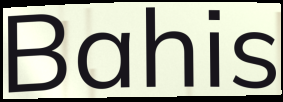
Bahis